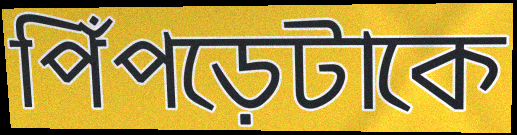
পিঁপড়েটাকে